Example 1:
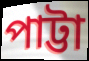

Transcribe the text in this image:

পাট্টা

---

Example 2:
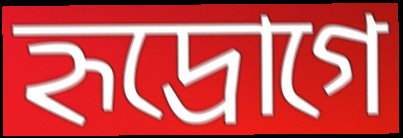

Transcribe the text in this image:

হৃদ্রোগে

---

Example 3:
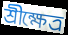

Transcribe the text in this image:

শ্রীক্ষেত্র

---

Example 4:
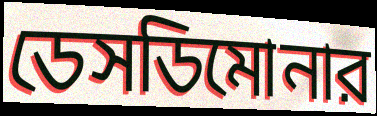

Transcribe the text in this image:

ডেসডিমোনার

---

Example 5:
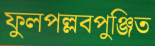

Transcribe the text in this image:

ফুলপল্লবপুঞ্জিত